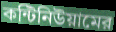
কন্টিনিউয়ামের